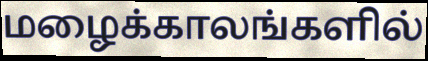
மழைக்காலங்களில்